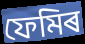
ফেমিৰ